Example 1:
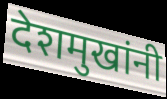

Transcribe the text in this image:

देशमुखांनी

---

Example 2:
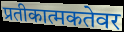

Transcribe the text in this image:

प्रतीकात्मकतेवर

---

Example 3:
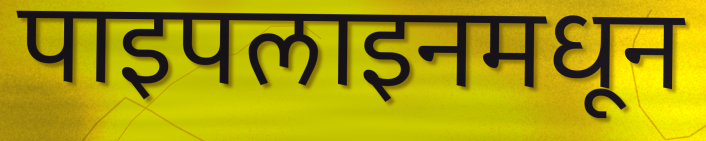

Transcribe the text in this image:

पाइपलाइनमधून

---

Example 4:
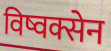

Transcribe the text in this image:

विष्वक्सेन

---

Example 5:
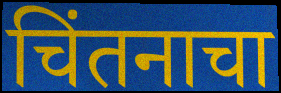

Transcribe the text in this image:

चिंतनाचा